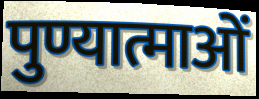
पुण्यात्माओं